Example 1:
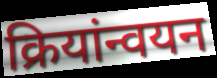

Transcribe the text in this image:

क्रियांन्वयन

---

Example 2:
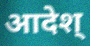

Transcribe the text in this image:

आदेश्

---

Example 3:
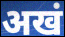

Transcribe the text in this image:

अखं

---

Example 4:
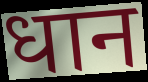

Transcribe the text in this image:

धान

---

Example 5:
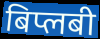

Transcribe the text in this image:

बिप्लबी